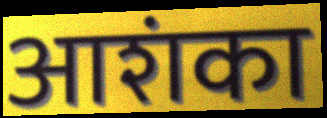
आशंका